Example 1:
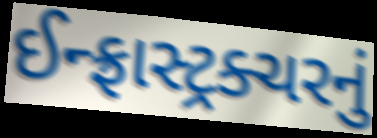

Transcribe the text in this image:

ઈન્ફ્રાસ્ટ્રક્ચરનું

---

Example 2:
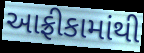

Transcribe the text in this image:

આફ્રીકામાંથી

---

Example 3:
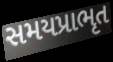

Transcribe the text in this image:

સમયપ્રાભૃત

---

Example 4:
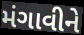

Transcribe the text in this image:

મંગાવીને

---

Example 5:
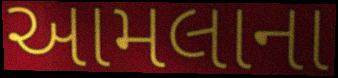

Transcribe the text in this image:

આમલાના